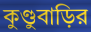
কুণ্ডুবাড়ির